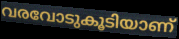
വരവോടുകൂടിയാണ്